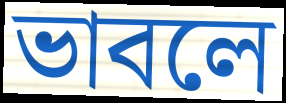
ভাবলে